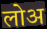
लोअ